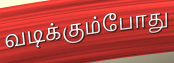
வடிக்கும்போது